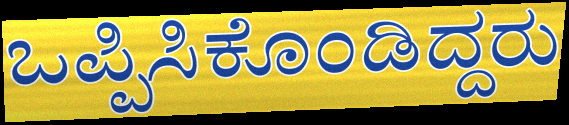
ಒಪ್ಪಿಸಿಕೊಂಡಿದ್ದರು